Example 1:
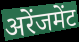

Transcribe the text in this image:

अरेंजमेंट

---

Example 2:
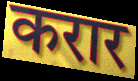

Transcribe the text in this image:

करार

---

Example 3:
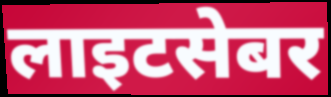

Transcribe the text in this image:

लाइटसेबर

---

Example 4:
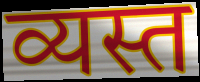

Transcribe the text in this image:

व्यस्त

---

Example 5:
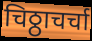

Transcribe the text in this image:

चिठ्ठाचर्चा